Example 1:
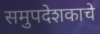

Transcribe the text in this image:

समुपदेशकाचे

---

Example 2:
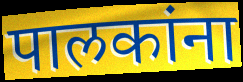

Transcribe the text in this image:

पालकांना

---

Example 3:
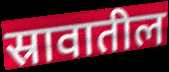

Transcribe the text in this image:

स्रावातील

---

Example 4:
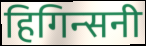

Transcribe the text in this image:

हिगिन्सनी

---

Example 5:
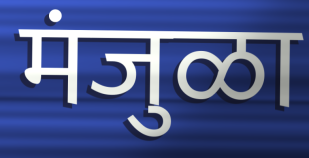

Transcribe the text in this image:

मंजुळा